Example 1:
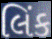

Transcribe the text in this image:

લિંક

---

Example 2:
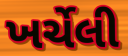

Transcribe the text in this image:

ખર્ચેલી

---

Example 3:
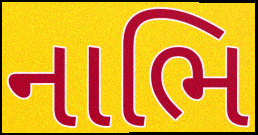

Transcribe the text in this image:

નાભિ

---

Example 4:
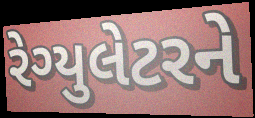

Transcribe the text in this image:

રેગ્યુલેટરને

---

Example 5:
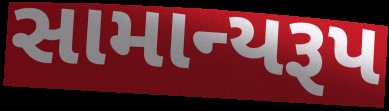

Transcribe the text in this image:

સામાન્યરૂપ